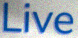
Live